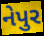
નેપુર